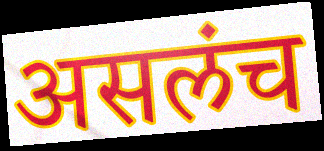
असलंच